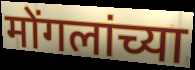
मोंगलांच्या